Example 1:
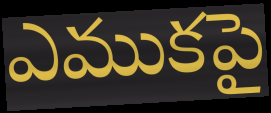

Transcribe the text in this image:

ఎముకపై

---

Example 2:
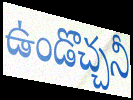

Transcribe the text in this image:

ఉండొచ్చనీ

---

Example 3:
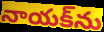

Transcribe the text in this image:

నాయక్‌ను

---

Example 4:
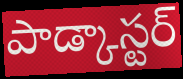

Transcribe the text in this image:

పాడ్కాస్టర్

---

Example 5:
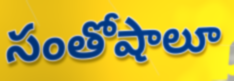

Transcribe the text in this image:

సంతోషాలూ